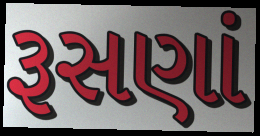
રૂસણાં